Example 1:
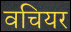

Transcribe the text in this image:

वचियर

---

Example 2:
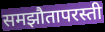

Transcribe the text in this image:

समझौतापरस्ती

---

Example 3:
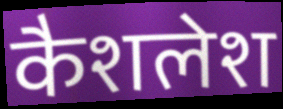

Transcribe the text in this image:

कैशलेश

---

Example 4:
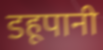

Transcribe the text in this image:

डहूपानी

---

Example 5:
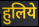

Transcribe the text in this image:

हुलिये